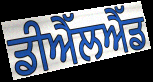
ਡੀਐੱਲਐੱਡ